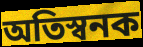
অতিস্বনক